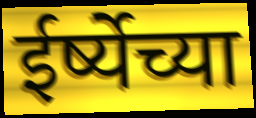
ईर्ष्येच्या